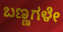
ಬಣ್ಣಗಳೇ